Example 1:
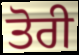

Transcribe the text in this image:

ਤੋਰੀ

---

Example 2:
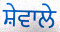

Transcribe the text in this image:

ਸ਼ੇਵਾਲੇ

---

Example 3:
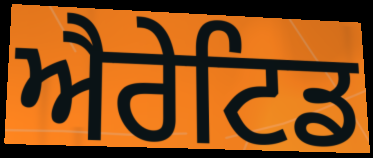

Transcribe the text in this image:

ਐਰੇਟਿਡ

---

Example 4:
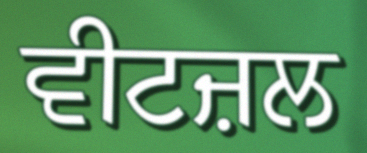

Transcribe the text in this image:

ਵੀਟਜ਼ਲ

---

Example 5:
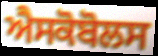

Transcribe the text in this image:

ਐਸਕੋਬੋਲਸ